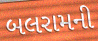
બલરામની